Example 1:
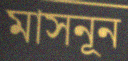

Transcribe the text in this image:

মাসনূন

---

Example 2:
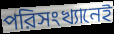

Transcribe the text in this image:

পরিসংখ্যানেই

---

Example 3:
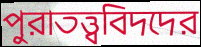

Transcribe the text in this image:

পুরাতত্ত্ববিদদের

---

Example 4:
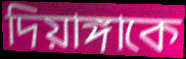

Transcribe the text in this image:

দিয়াঙ্গাকে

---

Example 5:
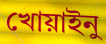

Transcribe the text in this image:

খোয়াইনু